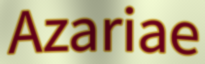
Azariae